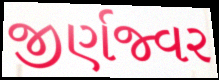
જીર્ણજ્વર